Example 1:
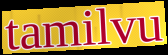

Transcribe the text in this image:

tamilvu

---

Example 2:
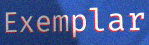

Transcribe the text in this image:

Exemplar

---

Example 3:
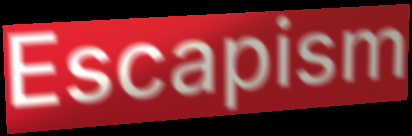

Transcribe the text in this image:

Escapism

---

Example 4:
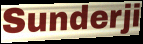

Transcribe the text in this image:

Sunderji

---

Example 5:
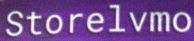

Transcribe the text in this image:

Storelvmo